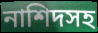
নাশিদসহ